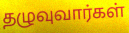
தழுவுவார்கள்